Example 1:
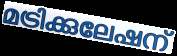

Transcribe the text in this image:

മട്രിക്കുലേഷന്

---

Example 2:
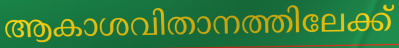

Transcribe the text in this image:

ആകാശവിതാനത്തിലേക്ക്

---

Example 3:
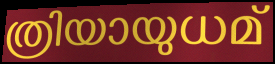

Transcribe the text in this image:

ത്രിയായുധമ്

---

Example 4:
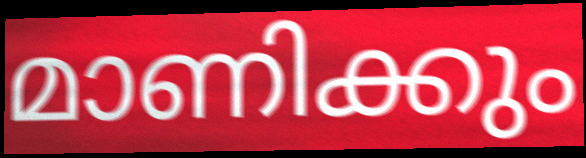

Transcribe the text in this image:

മാണിക്കും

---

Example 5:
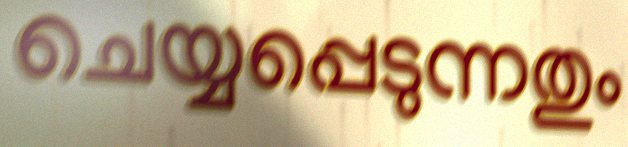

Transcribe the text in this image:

ചെയ്യപ്പെടുന്നതും